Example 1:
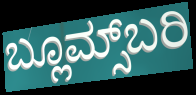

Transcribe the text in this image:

ಬ್ಲೂಮ್ಸ್‌ಬರಿ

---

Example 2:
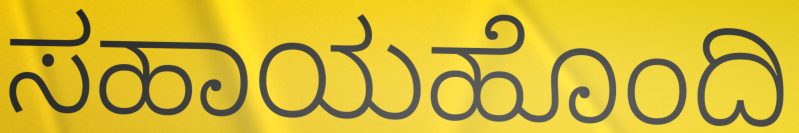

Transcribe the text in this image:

ಸಹಾಯಹೊಂದಿ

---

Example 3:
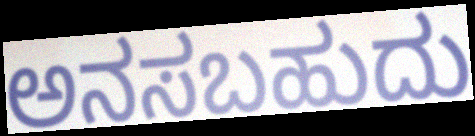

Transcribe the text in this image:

ಅನಸಬಹುದು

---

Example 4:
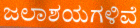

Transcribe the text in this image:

ಜಲಾಶಯಗಳಿವೆ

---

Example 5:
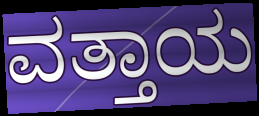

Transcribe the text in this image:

ವತ್ತಾಯ